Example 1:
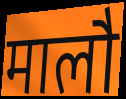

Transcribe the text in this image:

मालौ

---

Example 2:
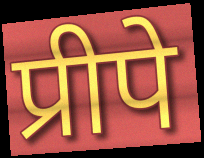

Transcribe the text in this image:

प्रीपे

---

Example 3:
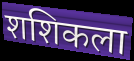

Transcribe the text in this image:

शशिकला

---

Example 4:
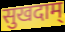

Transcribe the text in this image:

सुखदाम्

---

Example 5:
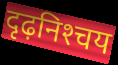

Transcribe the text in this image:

दृढ़निश्चय